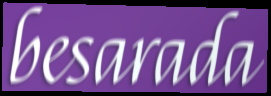
besarada